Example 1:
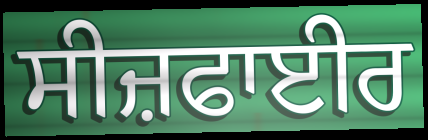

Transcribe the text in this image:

ਸੀਜ਼ਫਾਈਰ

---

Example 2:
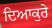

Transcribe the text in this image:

ਦਿਆਕੁਰੇ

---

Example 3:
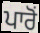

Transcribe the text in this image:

ਪਾਰੋਂ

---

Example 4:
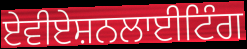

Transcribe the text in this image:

ਏਵੀਏਸ਼ਨਲਾਈਟਿੰਗ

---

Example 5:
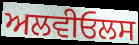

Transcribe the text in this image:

ਅਲਵੀਓਲਸ